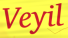
Veyil